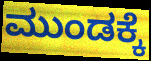
ಮುಂಡಕ್ಕೆ